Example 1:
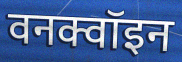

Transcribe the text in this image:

वनक्वॉइन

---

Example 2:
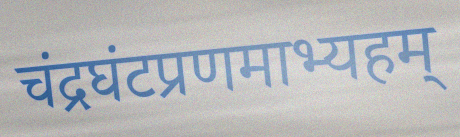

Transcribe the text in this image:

चंद्रघंटप्रणमाभ्यहम्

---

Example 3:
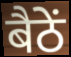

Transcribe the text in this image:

बैठें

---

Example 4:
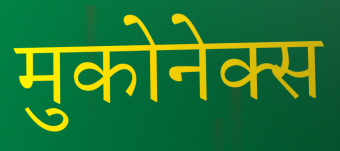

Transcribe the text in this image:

मुकोनेक्स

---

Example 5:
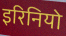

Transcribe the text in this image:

इरिनियो